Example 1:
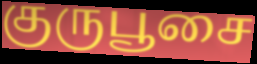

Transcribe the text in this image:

குருபூசை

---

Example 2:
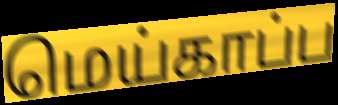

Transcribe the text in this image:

மெய்காப்ப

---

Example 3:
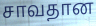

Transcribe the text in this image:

சாவதான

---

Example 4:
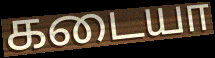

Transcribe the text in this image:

கடையா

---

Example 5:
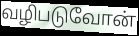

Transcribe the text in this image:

வழிபடுவோன்